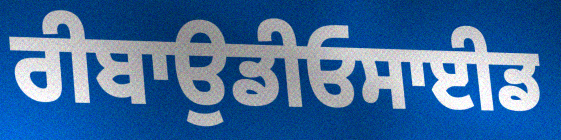
ਰੀਬਾਉਡੀਓਸਾਈਡ